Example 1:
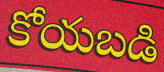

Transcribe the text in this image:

కోయబడి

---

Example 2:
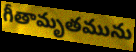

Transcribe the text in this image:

గీతామృతమును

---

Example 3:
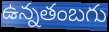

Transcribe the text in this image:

ఉన్నతంబగు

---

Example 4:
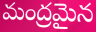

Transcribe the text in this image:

మంద్రమైన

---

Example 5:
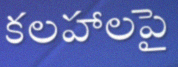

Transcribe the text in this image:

కలహాలపై